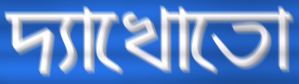
দ্যাখোতো